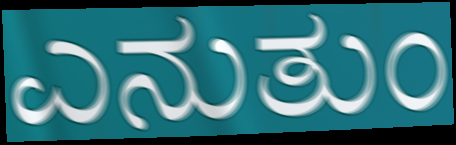
ಎನುತುಂ